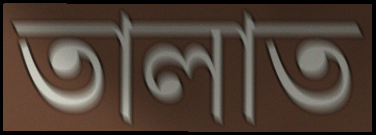
তালাত